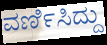
ವರ್ಣಿಸಿದ್ದು